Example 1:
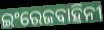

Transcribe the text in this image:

ଇଂରେଜବାହିନୀ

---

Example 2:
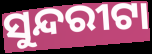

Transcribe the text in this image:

ସୁନ୍ଦରୀଟା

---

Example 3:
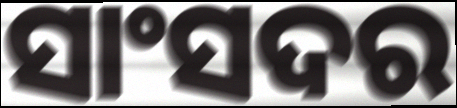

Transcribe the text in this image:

ସାଂସଦର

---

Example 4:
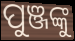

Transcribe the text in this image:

ପୁଞ୍ଜଙ୍କୁ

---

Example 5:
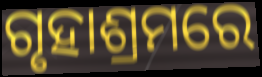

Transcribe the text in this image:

ଗୃହାଶ୍ରମରେ